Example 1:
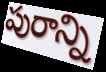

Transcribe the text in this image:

పురాన్ని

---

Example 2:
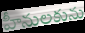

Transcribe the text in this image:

హీనులకును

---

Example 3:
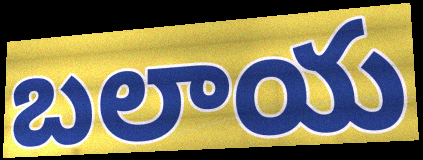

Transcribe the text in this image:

బలాయ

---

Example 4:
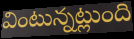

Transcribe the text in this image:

వింటున్నట్లుంది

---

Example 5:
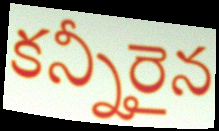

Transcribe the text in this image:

కన్నీరైన